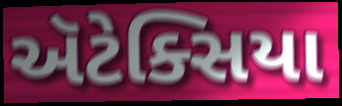
ઍટેક્સિયા